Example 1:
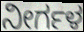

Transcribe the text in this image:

ನೀರ್ಗಳ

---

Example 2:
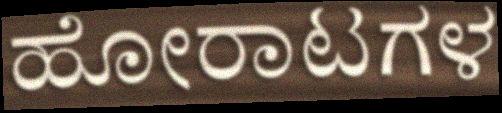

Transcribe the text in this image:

ಹೋರಾಟಗಳ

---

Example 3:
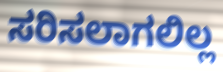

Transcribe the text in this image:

ಸರಿಸಲಾಗಲಿಲ್ಲ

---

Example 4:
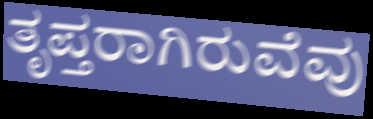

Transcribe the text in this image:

ತೃಪ್ತರಾಗಿರುವೆವು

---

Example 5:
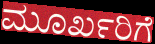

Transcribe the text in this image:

ಮೂರ್ಖರಿಗೆ